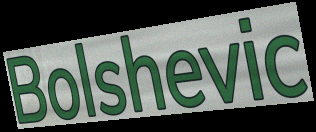
Bolshevic